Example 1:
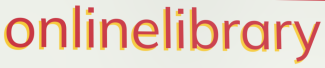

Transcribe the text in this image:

onlinelibrary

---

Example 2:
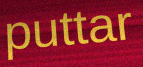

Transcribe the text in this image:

puttar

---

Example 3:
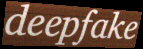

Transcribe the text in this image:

deepfake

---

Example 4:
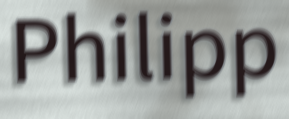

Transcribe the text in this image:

Philipp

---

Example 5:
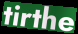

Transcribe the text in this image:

tirthe